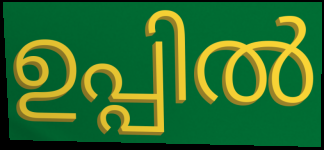
ഉപ്പിൽ